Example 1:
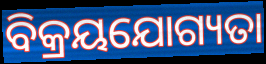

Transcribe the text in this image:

ବିକ୍ରୟଯୋଗ୍ୟତା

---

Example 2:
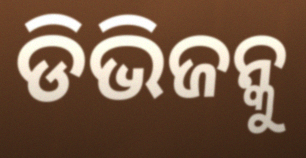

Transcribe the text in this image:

ଡିଭିଜନ୍କୁ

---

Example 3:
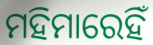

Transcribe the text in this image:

ମହିମାରେହିଁ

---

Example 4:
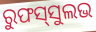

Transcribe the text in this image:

ରୁଫସ୍‌ସୁଲଭ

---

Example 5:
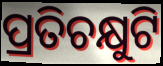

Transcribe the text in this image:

ପ୍ରତିଚକ୍ଷୁଟି